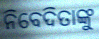
ନିବେଦିତାଙ୍କୁ